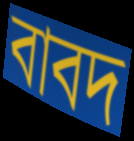
বাবদ